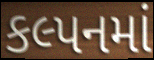
કલ્પનમાં